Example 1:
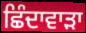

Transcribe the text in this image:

ਛਿੰਦਾਵਾੜਾ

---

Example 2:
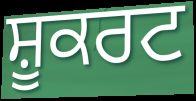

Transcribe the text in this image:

ਸ਼ੂਕਰਟ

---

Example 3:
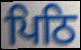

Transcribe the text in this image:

ਪਿਠਿ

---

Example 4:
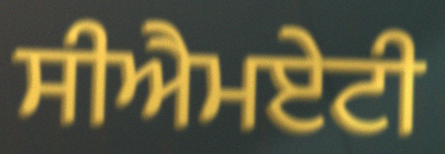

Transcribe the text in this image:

ਸੀਐਮਏਟੀ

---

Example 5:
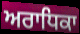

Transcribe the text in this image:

ਅਰਾਧਿਕਾ